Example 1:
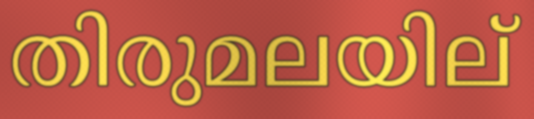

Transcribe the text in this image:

തിരുമലയില്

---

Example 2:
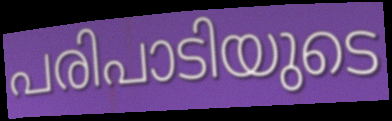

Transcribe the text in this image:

പരിപാടിയുടെ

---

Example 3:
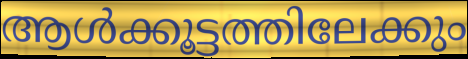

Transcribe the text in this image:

ആൾക്കൂട്ടത്തിലേക്കും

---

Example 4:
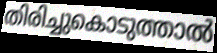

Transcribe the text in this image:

തിരിച്ചുകൊടുത്താൽ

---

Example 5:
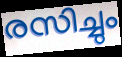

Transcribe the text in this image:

രസിച്ചും